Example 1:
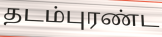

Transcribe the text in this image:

தடம்புரண்ட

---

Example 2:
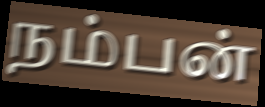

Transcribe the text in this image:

நம்பன்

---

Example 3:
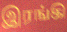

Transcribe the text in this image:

இரங்கி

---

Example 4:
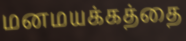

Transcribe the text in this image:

மனமயக்கத்தை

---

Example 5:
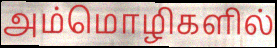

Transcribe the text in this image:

அம்மொழிகளில்